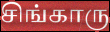
சிங்காரு